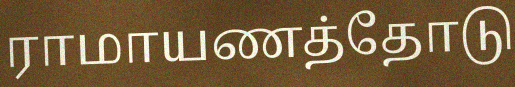
ராமாயணத்தோடு